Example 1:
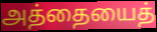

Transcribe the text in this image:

அத்தையைத்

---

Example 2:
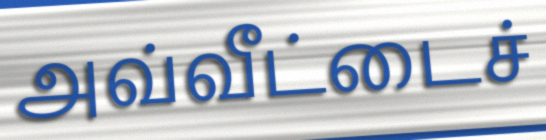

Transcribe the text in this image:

அவ்வீட்டைச்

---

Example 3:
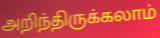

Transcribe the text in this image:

அறிந்திருக்கலாம்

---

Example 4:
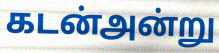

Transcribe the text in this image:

கடன்அன்று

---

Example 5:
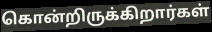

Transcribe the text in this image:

கொன்றிருக்கிறார்கள்